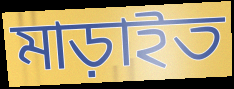
মাড়াইত